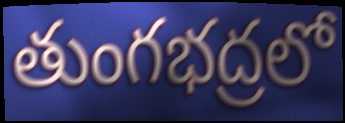
తుంగభద్రలో